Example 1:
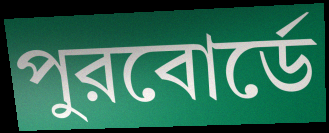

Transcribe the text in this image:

পুরবোর্ডে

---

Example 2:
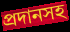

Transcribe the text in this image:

প্রদানসহ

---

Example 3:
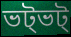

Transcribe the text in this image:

ভট্ভট্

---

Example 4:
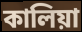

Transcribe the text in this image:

কালিয়া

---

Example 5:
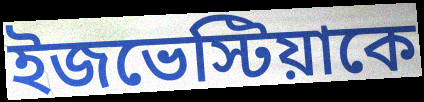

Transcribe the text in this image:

ইজভেস্টিয়াকে